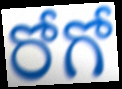
రోగో